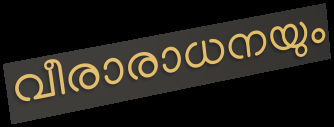
വീരാരാധനയും